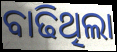
ବାଢିଥିଲା